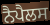
ਨੈਪੈਲਸ